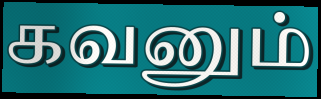
கவனும்